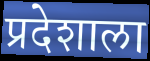
प्रदेशाला